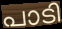
പാടി